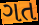
ગત